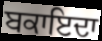
ਬਕਾਇਦਾ